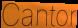
Cantor